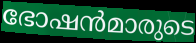
ഭോഷൻമാരുടെ